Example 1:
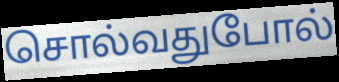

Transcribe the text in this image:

சொல்வதுபோல்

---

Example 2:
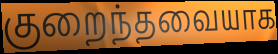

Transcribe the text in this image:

குறைந்தவையாக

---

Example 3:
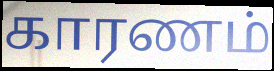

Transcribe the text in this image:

காரணம்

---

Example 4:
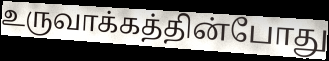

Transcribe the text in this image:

உருவாக்கத்தின்போது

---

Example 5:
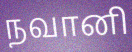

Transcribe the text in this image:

நவானி